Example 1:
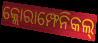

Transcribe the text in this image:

କ୍ଲୋରାମ୍ଫେନିକଲ୍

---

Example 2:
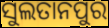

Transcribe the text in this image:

ସୁଲତାନପୁର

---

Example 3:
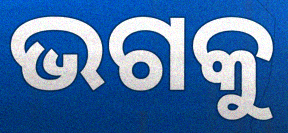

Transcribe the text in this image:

ଭଗକୁ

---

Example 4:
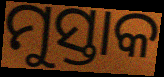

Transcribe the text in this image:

ମୁସ୍ତାକ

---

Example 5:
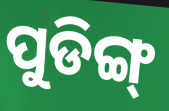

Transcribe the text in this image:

ପୁଡିଙ୍ଗ୍